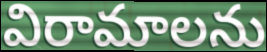
విరామాలను